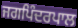
ਜਗਪਿੰਦਰਪਾਲ